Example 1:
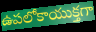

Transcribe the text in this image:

ఉపలోకాయుక్తగా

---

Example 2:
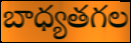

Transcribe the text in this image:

బాధ్యతగల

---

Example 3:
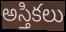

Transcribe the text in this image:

అస్తికలు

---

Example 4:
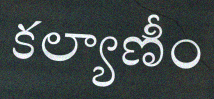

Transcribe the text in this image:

కల్యాణీం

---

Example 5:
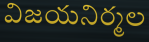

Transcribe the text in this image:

విజయనిర్మల